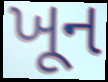
ખૂન